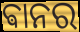
ଵାନର